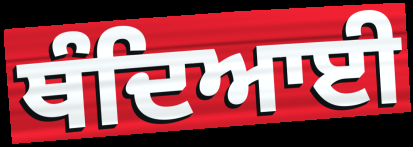
ਥੰਦਿਆਈ